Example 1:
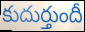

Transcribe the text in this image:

కుదుర్తుందీ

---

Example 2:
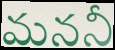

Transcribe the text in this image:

మననీ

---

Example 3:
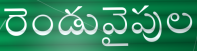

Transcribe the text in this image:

రెండువైపుల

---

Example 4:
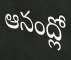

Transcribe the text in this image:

ఆనంద్లో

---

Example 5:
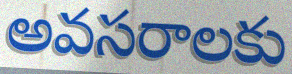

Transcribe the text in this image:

అవసరాలకు